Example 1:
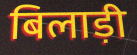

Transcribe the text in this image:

बिलाड़ी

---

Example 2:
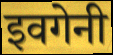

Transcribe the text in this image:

इवगेनी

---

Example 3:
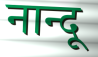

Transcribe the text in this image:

नान्दू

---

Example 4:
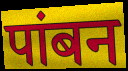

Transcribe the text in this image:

पांबन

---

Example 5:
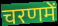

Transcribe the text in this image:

चरणमें